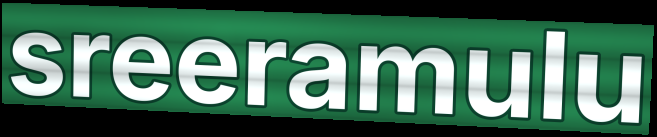
sreeramulu